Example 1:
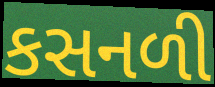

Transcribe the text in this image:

કસનળી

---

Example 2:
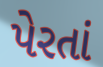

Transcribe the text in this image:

પેરતાં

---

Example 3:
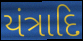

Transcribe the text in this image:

યંત્રાદિ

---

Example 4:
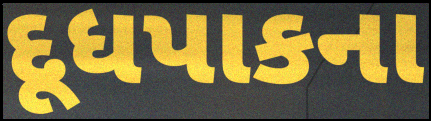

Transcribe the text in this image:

દૂધપાકના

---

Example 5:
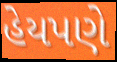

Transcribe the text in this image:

હેયપણે